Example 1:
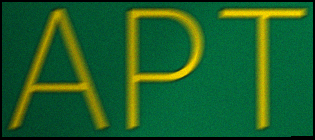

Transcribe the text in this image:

APT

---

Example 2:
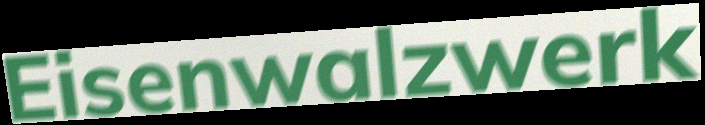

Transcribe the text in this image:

Eisenwalzwerk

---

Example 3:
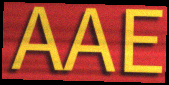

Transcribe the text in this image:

AAE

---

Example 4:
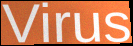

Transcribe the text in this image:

Virus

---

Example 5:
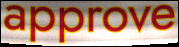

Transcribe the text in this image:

approve